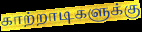
காற்றாடிகளுக்கு